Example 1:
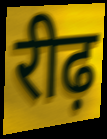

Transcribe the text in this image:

रीढ़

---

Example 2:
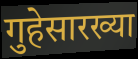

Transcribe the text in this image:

गुहेसारख्या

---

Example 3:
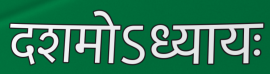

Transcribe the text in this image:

दशमोऽध्यायः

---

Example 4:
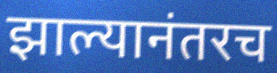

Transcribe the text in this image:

झाल्यानंतरच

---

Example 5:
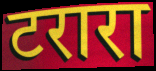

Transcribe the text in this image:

टरारा